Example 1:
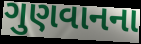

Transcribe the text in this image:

ગુણવાનના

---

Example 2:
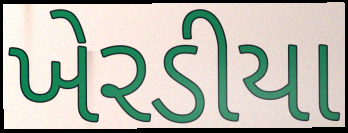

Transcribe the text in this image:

ખેરડીયા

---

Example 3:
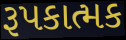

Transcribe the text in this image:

રૂપકાત્મક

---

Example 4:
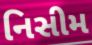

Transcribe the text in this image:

નિસીમ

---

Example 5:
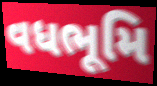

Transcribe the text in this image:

વધભૂમિ